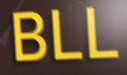
BLL